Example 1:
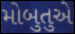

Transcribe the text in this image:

મોબુતુએ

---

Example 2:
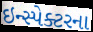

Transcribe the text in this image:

ઇન્સ્પેક્ટરના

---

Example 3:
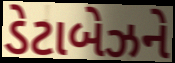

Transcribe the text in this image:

ડેટાબેઝને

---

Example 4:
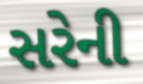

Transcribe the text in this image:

સરેની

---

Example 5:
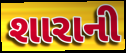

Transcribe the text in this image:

શારાની